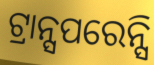
ଟ୍ରାନ୍ସପରେନ୍ସି